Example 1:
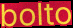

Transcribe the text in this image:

bolto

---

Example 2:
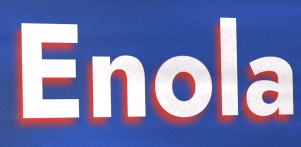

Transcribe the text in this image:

Enola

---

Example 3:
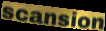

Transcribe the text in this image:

scansion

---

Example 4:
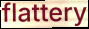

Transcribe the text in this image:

flattery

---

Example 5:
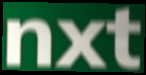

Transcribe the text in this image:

nxt